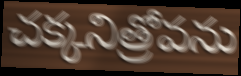
చక్కనిత్రోవను